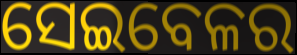
ସେଇବେଳର